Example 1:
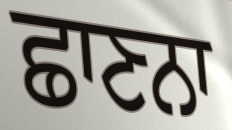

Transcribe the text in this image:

ਛਾਣਨਾ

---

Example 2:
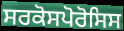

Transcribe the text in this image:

ਸਰਕੋਸਪੋਰੋਸਿਸ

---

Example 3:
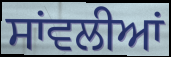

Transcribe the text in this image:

ਸਾਂਵਲੀਆਂ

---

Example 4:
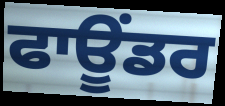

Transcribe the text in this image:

ਫਾਊਂਡਰ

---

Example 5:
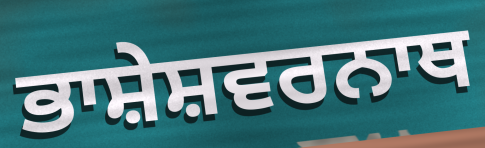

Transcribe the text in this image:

ਭਾਸ਼ੇਸ਼ਵਰਨਾਥ